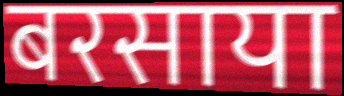
बरसाया